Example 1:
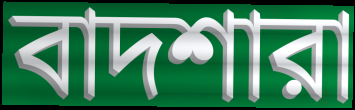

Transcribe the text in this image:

বাদশারা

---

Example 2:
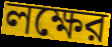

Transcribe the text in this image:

লক্ষের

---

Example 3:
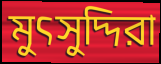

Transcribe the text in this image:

মুৎসুদ্দিরা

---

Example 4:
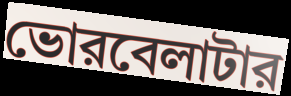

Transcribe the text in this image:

ভোরবেলাটার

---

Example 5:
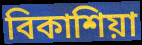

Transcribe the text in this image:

বিকাশিয়া